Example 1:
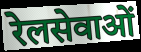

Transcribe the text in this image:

रेलसेवाओं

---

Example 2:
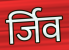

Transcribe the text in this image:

र्जिव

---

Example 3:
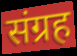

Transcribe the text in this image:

संग्रह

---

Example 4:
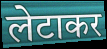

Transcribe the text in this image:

लेटाकर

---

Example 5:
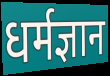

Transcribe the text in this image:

धर्मज्ञान